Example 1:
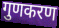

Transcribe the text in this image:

गुणकरण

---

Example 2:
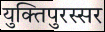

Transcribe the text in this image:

युक्तिपुरस्सर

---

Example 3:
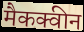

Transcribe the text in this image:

मैकक्वीन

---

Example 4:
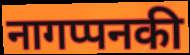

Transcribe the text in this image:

नागप्पनकी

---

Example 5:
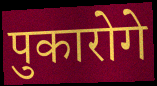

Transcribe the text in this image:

पुकारोगे